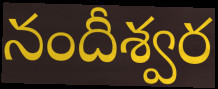
నందీశ్వర